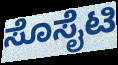
ಸೊಸೈಟಿ